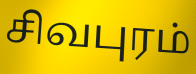
சிவபுரம்